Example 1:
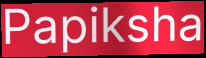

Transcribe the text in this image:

Papiksha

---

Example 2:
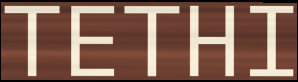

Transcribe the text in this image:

TETHI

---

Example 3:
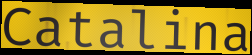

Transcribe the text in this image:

Catalina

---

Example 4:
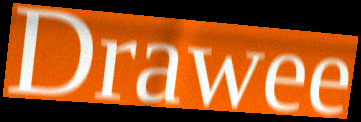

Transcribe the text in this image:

Drawee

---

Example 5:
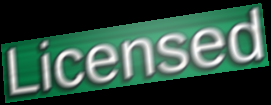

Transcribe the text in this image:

Licensed